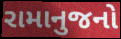
રામાનુજનો